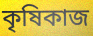
কৃষিকাজ